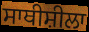
ਸਾਥੀਸ਼ੀਲਾ